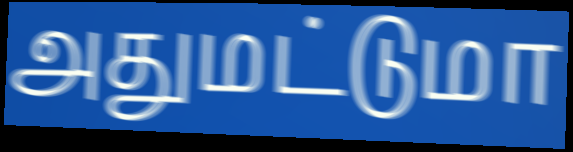
அதுமட்டுமா